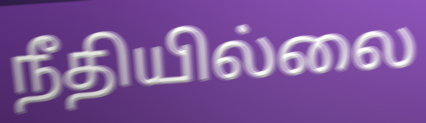
நீதியில்லை